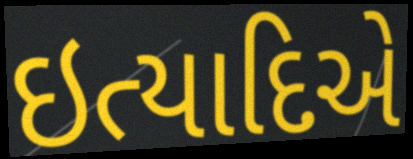
ઇત્યાદિએ